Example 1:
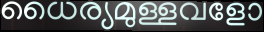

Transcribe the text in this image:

ധൈര്യമുള്ളവളോ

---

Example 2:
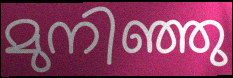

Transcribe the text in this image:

മുനിഞ്ഞു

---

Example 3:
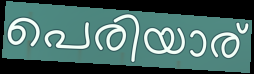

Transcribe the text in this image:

പെരിയാര്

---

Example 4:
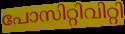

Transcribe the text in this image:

പോസിറ്റിവിറ്റി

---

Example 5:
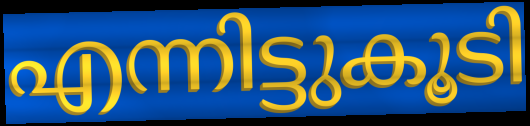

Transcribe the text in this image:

എന്നിട്ടുകൂടി